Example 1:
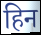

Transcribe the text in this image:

हिन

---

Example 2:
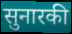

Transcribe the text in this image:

सुनारकी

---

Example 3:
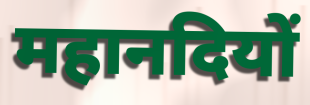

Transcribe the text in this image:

महानदियों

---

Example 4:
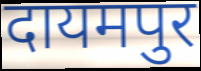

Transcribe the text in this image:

दायमपुर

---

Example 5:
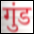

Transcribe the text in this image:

गुंड